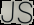
JS